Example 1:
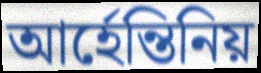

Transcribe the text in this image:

আর্হেন্তিনিয়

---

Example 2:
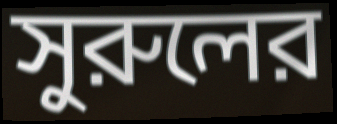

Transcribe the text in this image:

সুরুলের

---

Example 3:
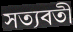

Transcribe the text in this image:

সত্যবতী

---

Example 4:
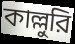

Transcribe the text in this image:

কাল্লুরি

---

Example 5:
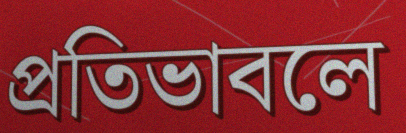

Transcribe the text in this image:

প্রতিভাবলে